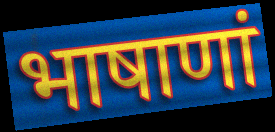
भाषाणां